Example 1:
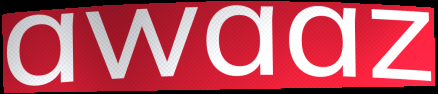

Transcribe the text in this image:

awaaz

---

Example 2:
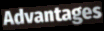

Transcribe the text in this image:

Advantages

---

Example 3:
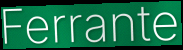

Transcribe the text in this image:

Ferrante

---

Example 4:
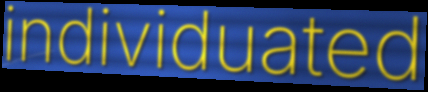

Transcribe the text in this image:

individuated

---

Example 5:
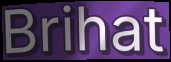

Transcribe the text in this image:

Brihat